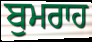
ਬੁਮਰਾਹ